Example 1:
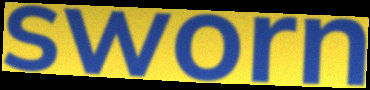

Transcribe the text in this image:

sworn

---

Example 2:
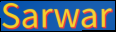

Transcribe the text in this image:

Sarwar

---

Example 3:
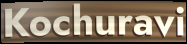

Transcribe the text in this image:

Kochuravi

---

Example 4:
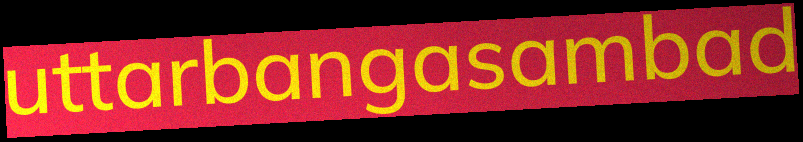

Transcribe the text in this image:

uttarbangasambad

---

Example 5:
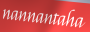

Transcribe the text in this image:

nannantaha